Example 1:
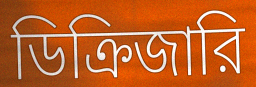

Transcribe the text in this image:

ডিক্রিজারি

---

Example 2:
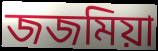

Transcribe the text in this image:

জজমিয়া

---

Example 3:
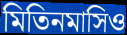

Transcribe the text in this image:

মিতিনমাসিও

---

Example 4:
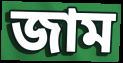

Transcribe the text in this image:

জাম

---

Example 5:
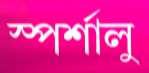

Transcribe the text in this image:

স্পর্শালু